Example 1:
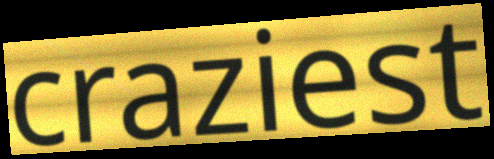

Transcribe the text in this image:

craziest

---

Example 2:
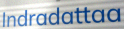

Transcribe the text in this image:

Indradattaa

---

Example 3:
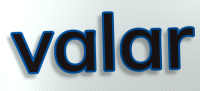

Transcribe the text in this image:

valar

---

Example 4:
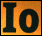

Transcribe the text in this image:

Io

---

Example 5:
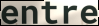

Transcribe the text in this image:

entre